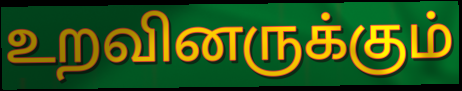
உறவினருக்கும்